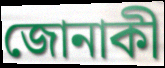
জোনাকী